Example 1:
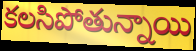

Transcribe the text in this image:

కలసిపోతున్నాయి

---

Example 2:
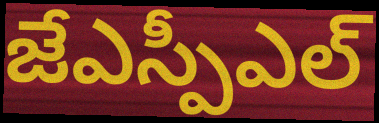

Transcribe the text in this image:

జేఎస్పీఎల్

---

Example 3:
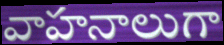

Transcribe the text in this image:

వాహనాలుగా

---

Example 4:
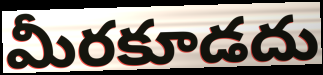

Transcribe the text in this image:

మీరకూడదు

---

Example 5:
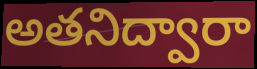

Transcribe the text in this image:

అతనిద్వారా